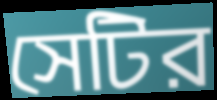
সেটির